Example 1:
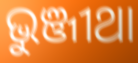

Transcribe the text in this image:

ଭୁଞ୍ଜୀଥା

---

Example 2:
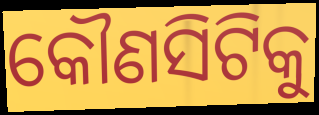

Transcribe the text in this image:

କୌଣସିଟିକୁ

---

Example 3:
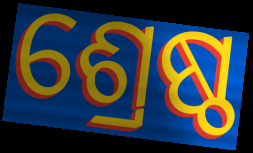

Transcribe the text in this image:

ଶ୍ରେଷ୍ଠ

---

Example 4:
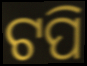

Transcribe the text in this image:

ଟପି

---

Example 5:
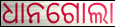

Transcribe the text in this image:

ଧାନଗୋଲା